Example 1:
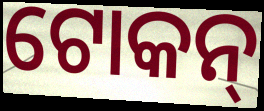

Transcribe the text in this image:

ଟୋକନ୍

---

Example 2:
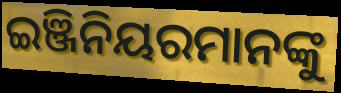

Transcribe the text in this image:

ଇଞ୍ଜିନିୟରମାନଙ୍କୁ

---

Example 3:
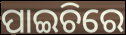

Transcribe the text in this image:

ପାଇଚିରେ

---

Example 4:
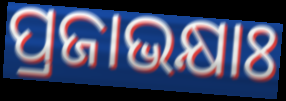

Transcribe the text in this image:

ପ୍ରଜାଭକ୍ଷାଃ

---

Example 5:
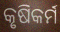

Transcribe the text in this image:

କୃଷିକର୍ମ